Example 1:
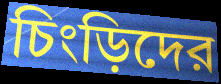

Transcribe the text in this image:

চিংড়িদের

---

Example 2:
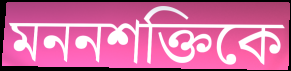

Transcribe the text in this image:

মননশক্তিকে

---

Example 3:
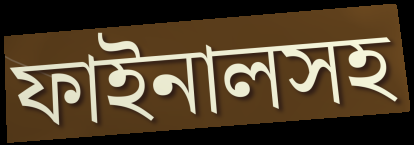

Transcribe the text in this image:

ফাইনালসহ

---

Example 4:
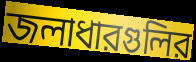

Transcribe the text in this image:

জলাধারগুলির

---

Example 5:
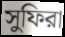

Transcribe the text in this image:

সুফিরা